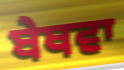
ਬੇਥਵਾ